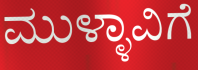
ಮುಳ್ಳಾವಿಗೆ